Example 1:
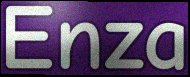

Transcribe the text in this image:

Enza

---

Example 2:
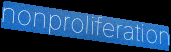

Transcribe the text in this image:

nonproliferation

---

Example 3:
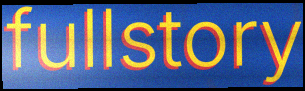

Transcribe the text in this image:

fullstory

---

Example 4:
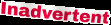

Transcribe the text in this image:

Inadvertent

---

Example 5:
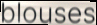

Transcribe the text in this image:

blouses